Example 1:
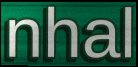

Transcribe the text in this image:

nhal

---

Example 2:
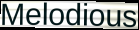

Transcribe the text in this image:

Melodious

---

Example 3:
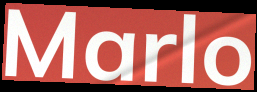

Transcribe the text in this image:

Marlo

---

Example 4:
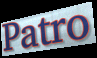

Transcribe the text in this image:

Patro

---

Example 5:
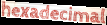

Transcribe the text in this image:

hexadecimal